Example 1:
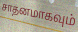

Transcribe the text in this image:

சாதனமாகவும்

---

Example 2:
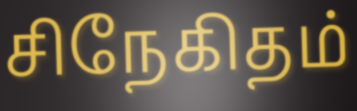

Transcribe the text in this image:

சிநேகிதம்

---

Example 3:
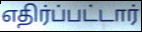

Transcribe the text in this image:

எதிர்ப்பட்டார்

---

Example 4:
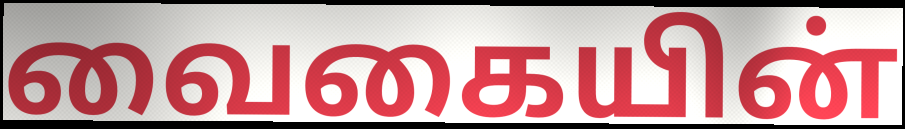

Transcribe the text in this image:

வைகையின்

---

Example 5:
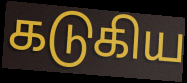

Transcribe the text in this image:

கடுகிய